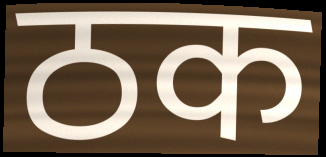
ठक